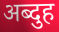
अब्दुह